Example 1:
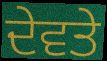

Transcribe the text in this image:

ਦੇਵਤੇ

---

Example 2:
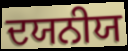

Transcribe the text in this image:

ਦਯਨੀਯ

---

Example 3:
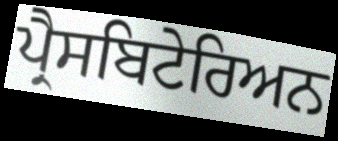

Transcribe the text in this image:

ਪ੍ਰੈਸਬਿਟੇਰਿਅਨ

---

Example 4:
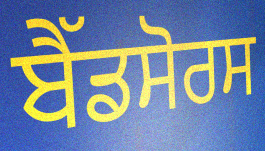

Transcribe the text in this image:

ਬੈੱਡਸੋਰਸ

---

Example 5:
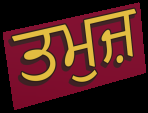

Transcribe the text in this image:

ਤਮੁਜ਼